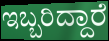
ಇಬ್ಬರಿದ್ದಾರೆ